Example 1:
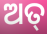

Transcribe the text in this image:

ଅତ୍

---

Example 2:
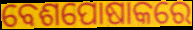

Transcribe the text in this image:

ବେଶପୋଷାକରେ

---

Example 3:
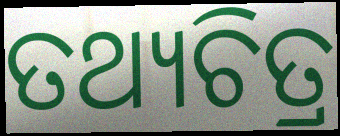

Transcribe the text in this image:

ତଥ୍ୟଚିତ୍ର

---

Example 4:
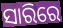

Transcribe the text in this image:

ସାରିରେ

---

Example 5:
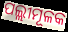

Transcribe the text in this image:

ପଲ୍ଲୀମୂଳକ